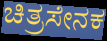
ಚಿತ್ರಸೇನಕ